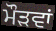
ਮੌੜਵਾਂ